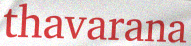
thavarana